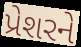
પ્રેશરને